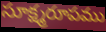
సూక్ష్మరూపము